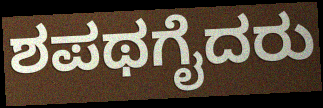
ಶಪಥಗೈದರು